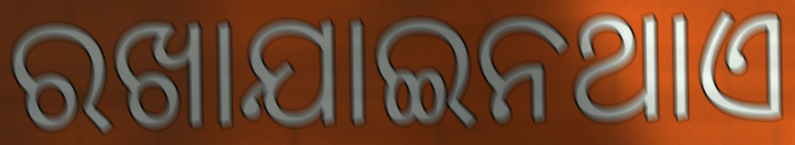
ରଖାଯାଇନଥାଏ